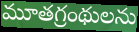
మూతగ్రంథులను